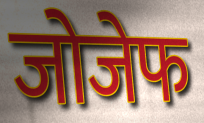
जोजेफ